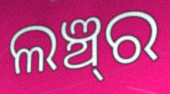
ଲଞ୍ଚ୍‍ର